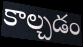
కాల్చడం